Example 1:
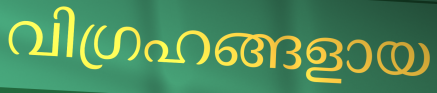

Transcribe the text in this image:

വിഗ്രഹങ്ങളായ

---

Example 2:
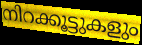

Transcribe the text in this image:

നിറക്കൂട്ടുകളും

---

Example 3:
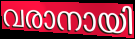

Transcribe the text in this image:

വരാനായി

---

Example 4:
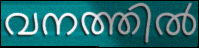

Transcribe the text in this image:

വനത്തിൽ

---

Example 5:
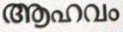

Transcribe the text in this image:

ആഹവം